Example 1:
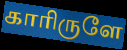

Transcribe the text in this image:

காரிருளே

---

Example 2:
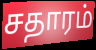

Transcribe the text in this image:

சதாரம்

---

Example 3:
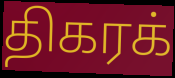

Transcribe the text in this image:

திகரக்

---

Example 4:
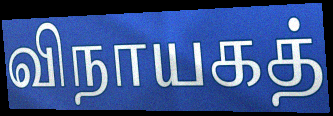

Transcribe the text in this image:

விநாயகத்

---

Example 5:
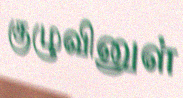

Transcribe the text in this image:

குழுவினுள்